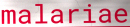
malariae